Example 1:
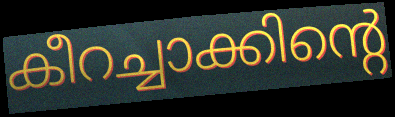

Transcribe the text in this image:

കീറച്ചാക്കിന്റെ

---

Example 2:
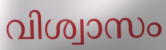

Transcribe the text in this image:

വിശ്വാസം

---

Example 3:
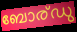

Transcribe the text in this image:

ബോര്ഡു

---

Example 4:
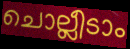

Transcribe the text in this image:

ചൊല്ലീടാം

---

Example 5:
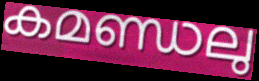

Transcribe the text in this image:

കമണ്ഡലു